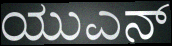
ಯುಎನ್